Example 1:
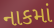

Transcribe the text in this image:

નાકમાં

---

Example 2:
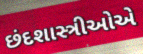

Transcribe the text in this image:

છંદશાસ્ત્રીઓએ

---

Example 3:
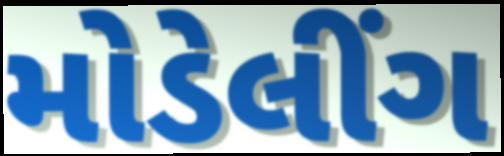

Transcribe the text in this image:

મોડેલીંગ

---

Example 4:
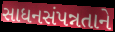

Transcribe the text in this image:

સાધનસંપન્નતાને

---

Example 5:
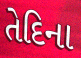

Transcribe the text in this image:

તેદિના